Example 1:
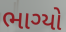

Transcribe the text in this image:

ભાગ્યો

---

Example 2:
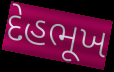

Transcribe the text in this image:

દેહભૂખ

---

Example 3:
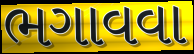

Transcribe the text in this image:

ભગાવવા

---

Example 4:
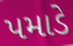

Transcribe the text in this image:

પમાડે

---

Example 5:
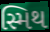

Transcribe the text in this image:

સ્મિથ